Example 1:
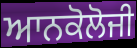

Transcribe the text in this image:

ਆਨਕੋਲੋਜੀ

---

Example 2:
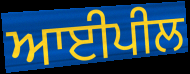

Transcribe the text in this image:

ਆਈਪੀਲ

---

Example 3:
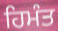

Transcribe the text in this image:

ਹਿਮੰਤ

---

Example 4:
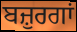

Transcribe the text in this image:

ਬਜ਼ੁਰਗਾਂ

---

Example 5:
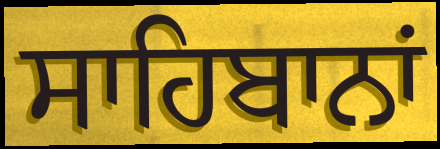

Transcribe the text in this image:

ਸਾਹਿਬਾਨਾਂ